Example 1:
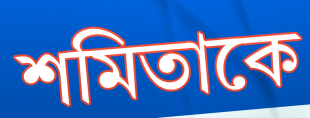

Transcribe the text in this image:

শমিতাকে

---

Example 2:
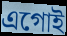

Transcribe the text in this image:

এগোই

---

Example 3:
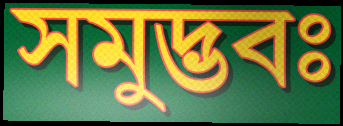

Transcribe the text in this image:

সমুদ্ভবঃ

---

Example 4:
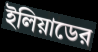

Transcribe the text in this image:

ইলিয়াডের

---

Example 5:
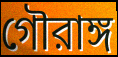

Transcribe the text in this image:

গৌরাঙ্গ